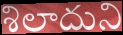
శిలాదుని